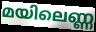
മയിലെണ്ണ